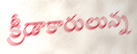
క్రీడాకారులున్న